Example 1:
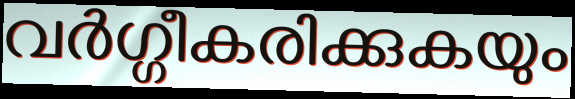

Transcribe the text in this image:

വർഗ്ഗീകരിക്കുകയും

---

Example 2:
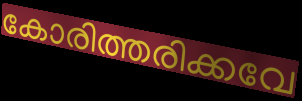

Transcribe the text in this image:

കോരിത്തരിക്കവേ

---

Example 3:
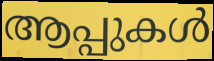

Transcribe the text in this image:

ആപ്പുകൾ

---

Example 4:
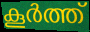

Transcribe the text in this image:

കൂർത്ത്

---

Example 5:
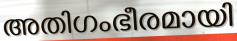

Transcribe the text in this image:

അതിഗംഭീരമായി